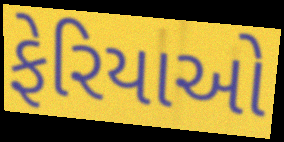
ફેરિયાઓ